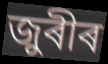
জুৰীৰ